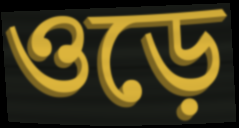
ওড়ে